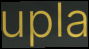
upla